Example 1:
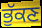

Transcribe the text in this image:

ਭੁੱਕਣ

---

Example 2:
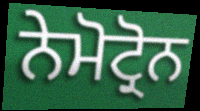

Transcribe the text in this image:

ਨੇਮੋਟ੍ਰੋਨ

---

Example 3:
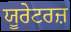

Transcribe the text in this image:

ਯੂਰੇਟਰਜ਼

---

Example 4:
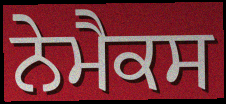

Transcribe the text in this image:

ਨੇਮੈਕਸ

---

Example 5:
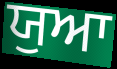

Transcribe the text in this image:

ਯੁਆ